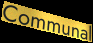
Communal